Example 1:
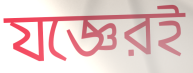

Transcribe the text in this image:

যজ্ঞেরই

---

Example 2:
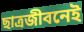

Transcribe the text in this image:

ছাত্রজীবনেই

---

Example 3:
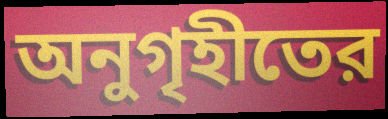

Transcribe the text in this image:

অনুগৃহীতের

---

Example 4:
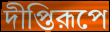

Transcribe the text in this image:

দীপ্তিরূপে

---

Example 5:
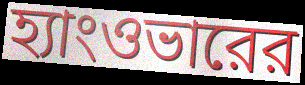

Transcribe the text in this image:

হ্যাংওভারের